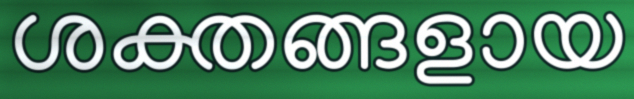
ശക്തങ്ങളായ